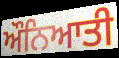
ਔਨਿਆਤੀ